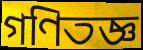
গণিতজ্ঞ